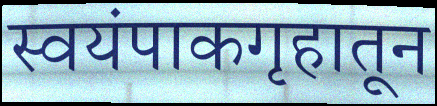
स्वयंपाकगृहातून